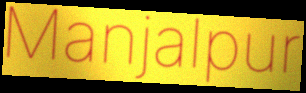
Manjalpur